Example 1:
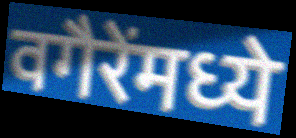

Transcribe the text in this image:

वगैरेंमध्ये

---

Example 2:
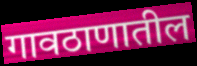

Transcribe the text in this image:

गावठाणातील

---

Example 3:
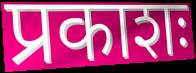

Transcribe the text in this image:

प्रकाशः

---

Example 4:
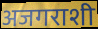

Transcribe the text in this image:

अजगराशी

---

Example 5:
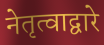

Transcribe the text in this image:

नेतृत्वाद्वारे